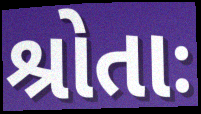
શ્રોતાઃ